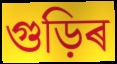
গুড়িৰ